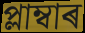
প্লাম্বাৰ